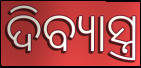
ଦିବ୍ୟାସ୍ତ୍ର